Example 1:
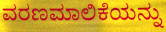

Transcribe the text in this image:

ವರಣಮಾಲಿಕೆಯನ್ನು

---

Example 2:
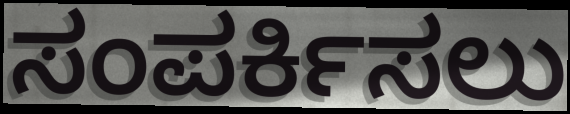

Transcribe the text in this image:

ಸಂಪರ್ಕಿಸಲು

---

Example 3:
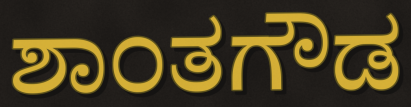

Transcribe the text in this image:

ಶಾಂತಗೌಡ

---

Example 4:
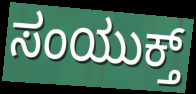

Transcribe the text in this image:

ಸಂಯುಕ್ತ್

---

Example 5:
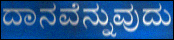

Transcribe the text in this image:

ದಾನವೆನ್ನುವುದು